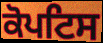
ਕੋਪਟਿਸ